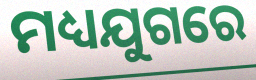
ମଧ୍ୟଯୁଗରେ